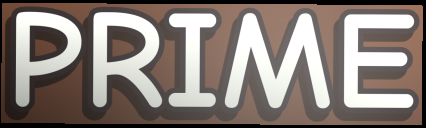
PRIME